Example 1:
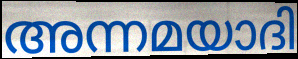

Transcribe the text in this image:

അന്നമയാദി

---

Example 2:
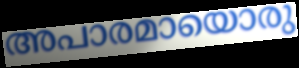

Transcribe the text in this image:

അപാരമായൊരു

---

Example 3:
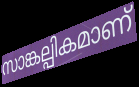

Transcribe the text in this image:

സാങ്കല്പികമാണ്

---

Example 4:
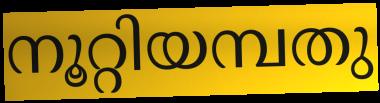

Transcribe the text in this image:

നൂറ്റിയമ്പതു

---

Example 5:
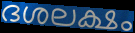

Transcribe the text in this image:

ദശലക്ഷം